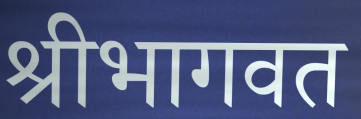
श्रीभागवत